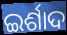
ଇର୍ଶାଦ